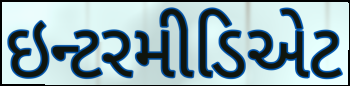
ઇન્ટરમીડિએટ